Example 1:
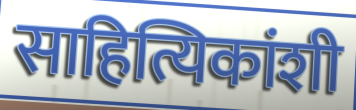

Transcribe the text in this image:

साहित्यिकांशी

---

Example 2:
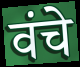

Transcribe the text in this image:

वंचे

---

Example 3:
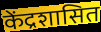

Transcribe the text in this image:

केंद्रशासित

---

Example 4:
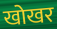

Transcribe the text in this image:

खोखर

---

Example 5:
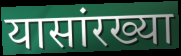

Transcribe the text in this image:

यासांरख्या